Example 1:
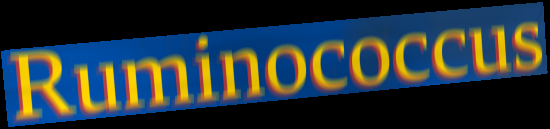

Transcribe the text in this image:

Ruminococcus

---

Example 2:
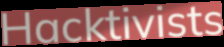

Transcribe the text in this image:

Hacktivists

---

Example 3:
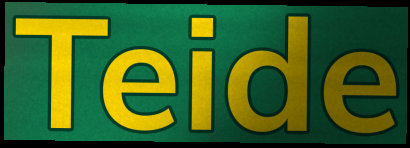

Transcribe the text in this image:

Teide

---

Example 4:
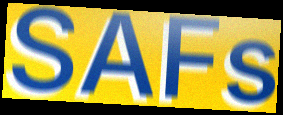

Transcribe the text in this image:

SAFs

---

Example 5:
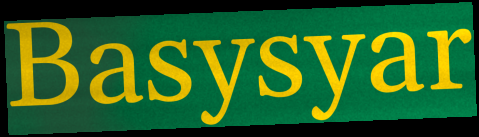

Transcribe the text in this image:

Basysyar